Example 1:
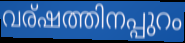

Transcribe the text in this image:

വര്ഷത്തിനപ്പുറം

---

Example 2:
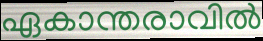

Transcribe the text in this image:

ഏകാന്തരാവിൽ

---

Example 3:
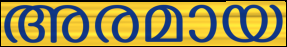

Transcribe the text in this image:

അരമായ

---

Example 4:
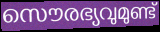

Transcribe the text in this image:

സൌരഭ്യവുമുണ്ട്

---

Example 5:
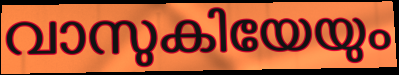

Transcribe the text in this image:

വാസുകിയേയും